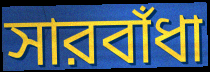
সারবাঁধা